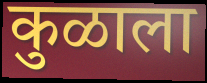
कुळाला